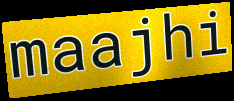
maajhi